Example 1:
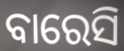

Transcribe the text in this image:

ବାରେସି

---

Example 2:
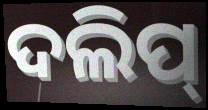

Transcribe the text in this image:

ଦଲିପ୍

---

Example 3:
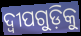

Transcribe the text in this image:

ଦ୍ୱୀପଗୁଡ଼ିକୁ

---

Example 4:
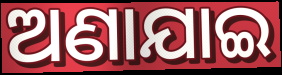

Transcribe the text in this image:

ଅଣାଯାଇ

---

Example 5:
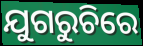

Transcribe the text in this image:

ଯୁଗରୁଚିରେ